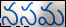
నసమ